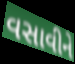
વસાવીને